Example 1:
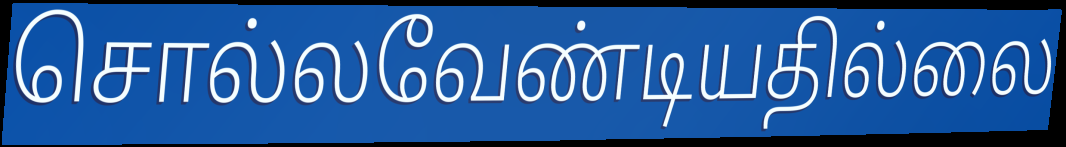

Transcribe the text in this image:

சொல்லவேண்டியதில்லை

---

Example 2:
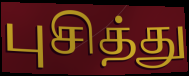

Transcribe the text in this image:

புசித்து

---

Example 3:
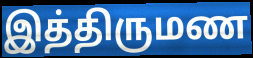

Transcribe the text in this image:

இத்திருமண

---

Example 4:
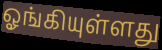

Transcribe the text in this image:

ஓங்கியுள்ளது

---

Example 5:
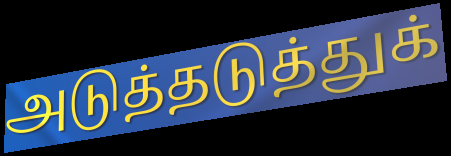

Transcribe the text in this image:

அடுத்தடுத்துக்